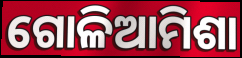
ଗୋଳିଆମିଶା